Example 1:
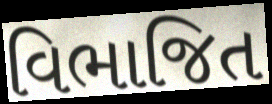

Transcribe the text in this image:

વિભાજિત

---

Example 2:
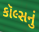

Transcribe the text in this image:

કૉલ્સનું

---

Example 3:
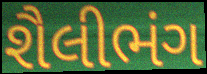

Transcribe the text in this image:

શૈલીભંગ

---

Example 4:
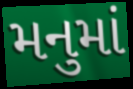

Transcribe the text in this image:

મનુમાં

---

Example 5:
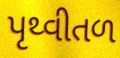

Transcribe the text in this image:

પૃથ્વીતળ